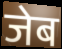
जेब